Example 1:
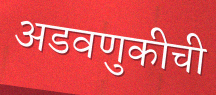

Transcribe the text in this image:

अडवणुकीची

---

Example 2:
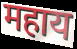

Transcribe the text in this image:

महाय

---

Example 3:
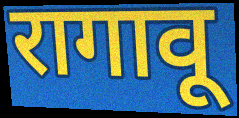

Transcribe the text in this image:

रागावू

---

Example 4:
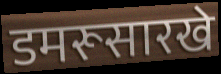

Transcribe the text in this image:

डमरूसारखे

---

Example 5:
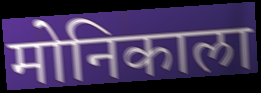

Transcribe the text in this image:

मोनिकाला